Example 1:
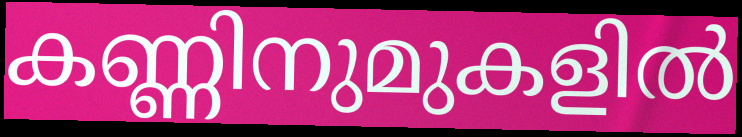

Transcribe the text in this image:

കണ്ണിനുമുകളിൽ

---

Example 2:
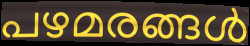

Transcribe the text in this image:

പഴമരങ്ങൾ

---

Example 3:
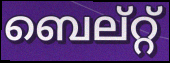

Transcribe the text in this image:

ബെല്റ്റ്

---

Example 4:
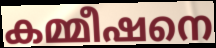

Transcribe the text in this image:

കമ്മീഷനെ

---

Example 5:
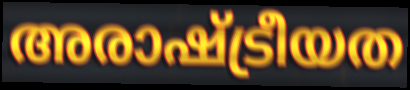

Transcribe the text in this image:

അരാഷ്ട്രീയത